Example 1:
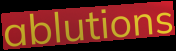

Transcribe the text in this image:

ablutions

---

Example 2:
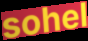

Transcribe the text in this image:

sohel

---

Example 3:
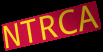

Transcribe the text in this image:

NTRCA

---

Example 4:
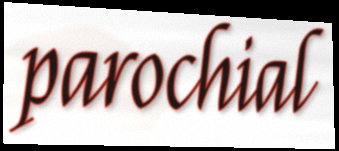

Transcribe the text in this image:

parochial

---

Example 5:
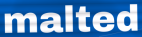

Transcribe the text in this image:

malted